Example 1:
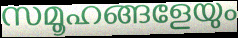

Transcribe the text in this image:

സമൂഹങ്ങളേയും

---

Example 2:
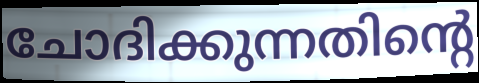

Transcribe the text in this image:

ചോദിക്കുന്നതിന്റെ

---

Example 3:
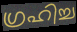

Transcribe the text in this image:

ഗ്രഹിച്ച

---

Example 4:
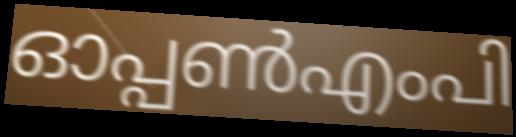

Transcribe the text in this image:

ഓപ്പൺഎംപി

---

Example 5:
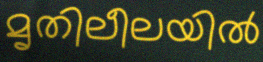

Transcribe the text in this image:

മൃതിലീലയിൽ